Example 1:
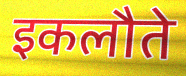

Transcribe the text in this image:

इकलौते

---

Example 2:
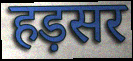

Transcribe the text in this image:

हड़सर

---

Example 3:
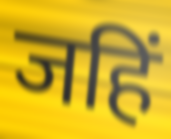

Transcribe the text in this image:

जहिं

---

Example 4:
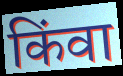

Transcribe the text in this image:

किंवा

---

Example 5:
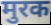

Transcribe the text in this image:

मुरक